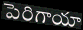
పెరిగాయా